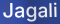
Jagali